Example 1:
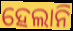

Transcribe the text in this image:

ହେଲାନି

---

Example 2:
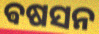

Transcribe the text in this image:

ଵଷସନ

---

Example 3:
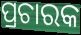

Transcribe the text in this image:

ପ୍ରଚାରକ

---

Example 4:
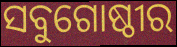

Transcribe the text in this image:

ସବୁଗୋଷ୍ଠୀର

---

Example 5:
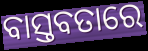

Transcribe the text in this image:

ବାସ୍ତବତାରେ